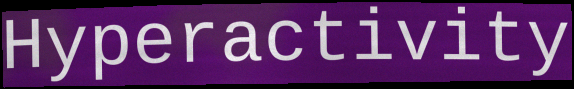
Hyperactivity